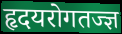
हृदयरोगतज्ज्ञ